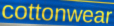
cottonwear